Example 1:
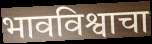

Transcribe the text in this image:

भावविश्वाचा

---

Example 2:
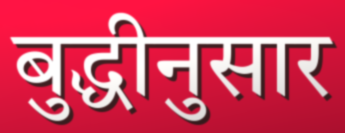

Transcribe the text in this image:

बुद्धीनुसार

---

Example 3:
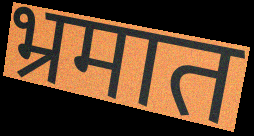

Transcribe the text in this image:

भ्रमात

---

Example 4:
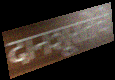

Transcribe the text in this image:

दानशूरतेचे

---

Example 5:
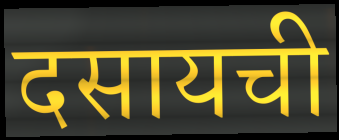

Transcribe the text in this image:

दसायची